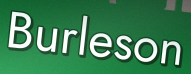
Burleson